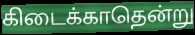
கிடைக்காதென்று